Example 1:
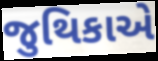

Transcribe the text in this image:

જુથિકાએ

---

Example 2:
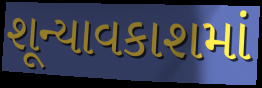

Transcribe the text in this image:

શૂન્યાવકાશમાં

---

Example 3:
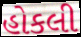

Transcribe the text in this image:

હોકલી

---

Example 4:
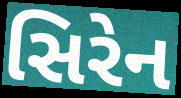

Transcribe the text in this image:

સિરેન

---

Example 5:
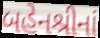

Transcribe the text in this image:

બહેનશ્રીનાં